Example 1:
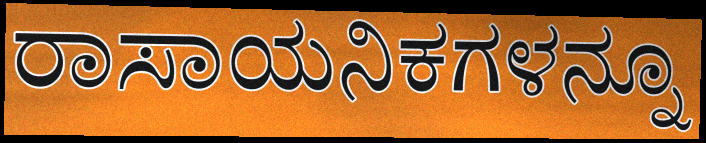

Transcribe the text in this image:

ರಾಸಾಯನಿಕಗಳನ್ನೂ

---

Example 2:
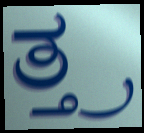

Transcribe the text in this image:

ತ್ತ್ರ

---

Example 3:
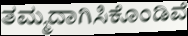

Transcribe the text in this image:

ತಮ್ಮದಾಗಿಸಿಕೊಂಡಿವೆ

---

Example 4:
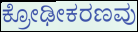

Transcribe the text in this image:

ಕ್ರೋಢೀಕರಣವು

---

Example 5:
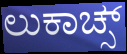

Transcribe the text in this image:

ಲುಕಾಚ್ಸ್